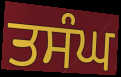
ਤਸੰਘ